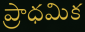
ప్రాధమిక